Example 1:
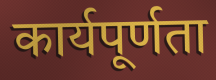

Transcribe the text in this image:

कार्यपूर्णता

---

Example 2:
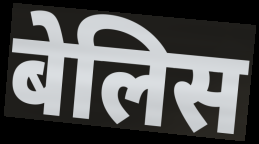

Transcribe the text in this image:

बेलिस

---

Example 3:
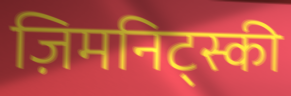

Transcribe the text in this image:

ज़िमनिट्स्की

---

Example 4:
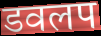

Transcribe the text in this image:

डवलप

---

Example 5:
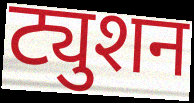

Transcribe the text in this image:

ट्युशन